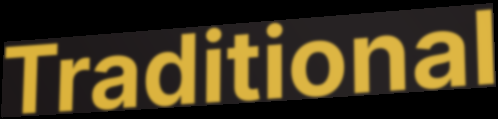
Traditional